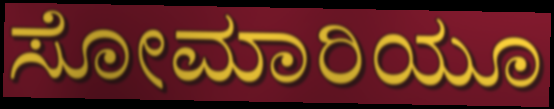
ಸೋಮಾರಿಯೂ